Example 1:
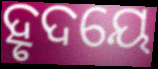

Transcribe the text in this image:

ହୃଦୟେ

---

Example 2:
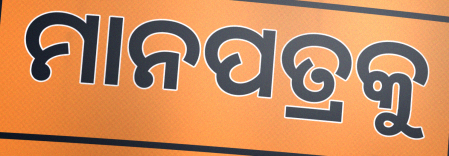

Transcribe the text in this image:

ମାନପତ୍ରକୁ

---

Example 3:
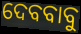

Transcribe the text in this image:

ଦେବବାବୁ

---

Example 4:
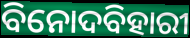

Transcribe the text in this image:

ବିନୋଦବିହାରୀ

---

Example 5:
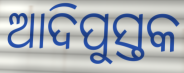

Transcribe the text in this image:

ଆଦିପୁସ୍ତକ